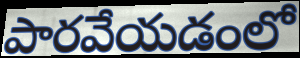
పారవేయడంలో